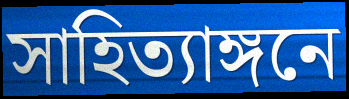
সাহিত্যাঙ্গনে